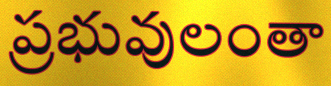
ప్రభువులంతా